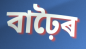
বাঢ়ৈৰ